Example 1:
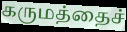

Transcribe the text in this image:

கருமத்தைச்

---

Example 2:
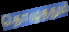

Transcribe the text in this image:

தொழுததும்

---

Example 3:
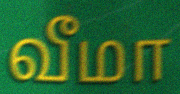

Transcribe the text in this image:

வீமா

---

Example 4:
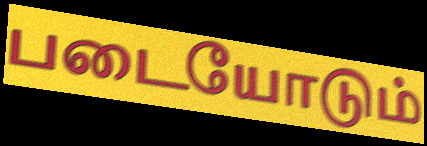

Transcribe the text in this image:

படையோடும்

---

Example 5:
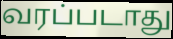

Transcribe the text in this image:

வரப்படாது